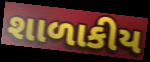
શાળાકીય